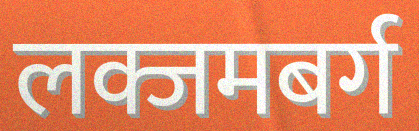
लक्जमबर्ग